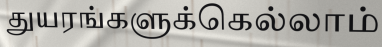
துயரங்களுக்கெல்லாம்